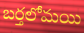
బర్తలోమయి